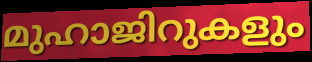
മുഹാജിറുകളും